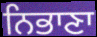
ਨਿਭਾਣਾ